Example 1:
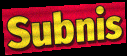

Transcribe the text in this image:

Subnis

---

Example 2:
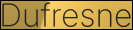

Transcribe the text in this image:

Dufresne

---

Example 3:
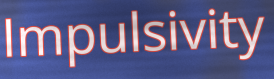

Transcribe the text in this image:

Impulsivity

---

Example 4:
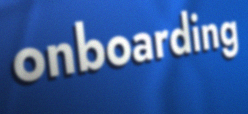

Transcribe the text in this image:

onboarding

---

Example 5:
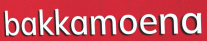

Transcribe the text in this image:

bakkamoena